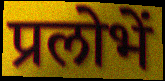
प्रलोभें